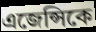
এজেন্সিকে